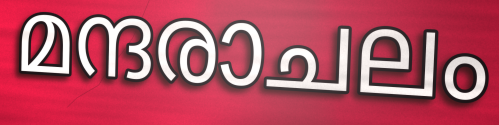
മന്ദരാചലം